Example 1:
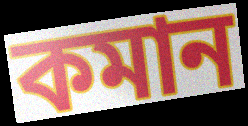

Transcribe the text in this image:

কমান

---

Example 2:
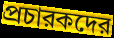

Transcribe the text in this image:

প্রচারকদের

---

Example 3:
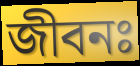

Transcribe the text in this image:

জীবনঃ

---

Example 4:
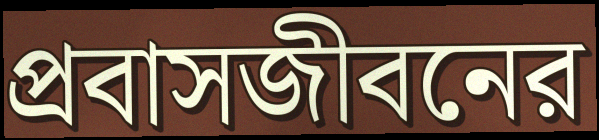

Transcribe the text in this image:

প্রবাসজীবনের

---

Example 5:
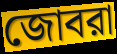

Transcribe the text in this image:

জোবরা